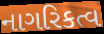
નાગરિકત્વ